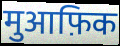
मुआफ़िक